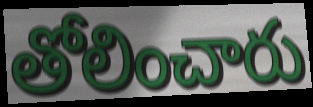
తోలించారు